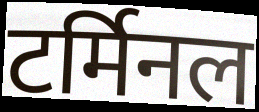
टर्मिनल